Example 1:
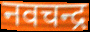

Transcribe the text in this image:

नवचन्द्र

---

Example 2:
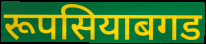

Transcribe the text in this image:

रूपसियाबगड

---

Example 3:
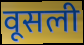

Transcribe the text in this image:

वूसली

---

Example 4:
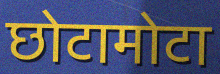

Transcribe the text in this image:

छोटामोटा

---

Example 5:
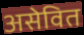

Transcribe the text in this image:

असेवित